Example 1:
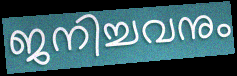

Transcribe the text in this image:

ജനിച്ചവനും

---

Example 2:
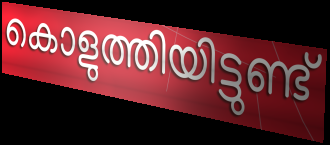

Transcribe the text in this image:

കൊളുത്തിയിട്ടുണ്ട്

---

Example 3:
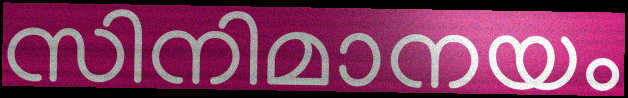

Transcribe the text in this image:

സിനിമാനയം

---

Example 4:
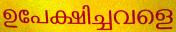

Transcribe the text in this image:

ഉപേക്ഷിച്ചവളെ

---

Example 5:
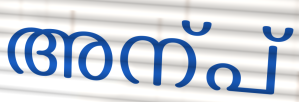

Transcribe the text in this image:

അന്പ്